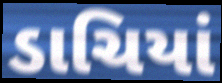
ડાચિયાં